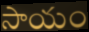
సాయం